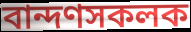
বান্দণসকলক